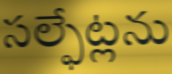
సల్ఫేట్లను